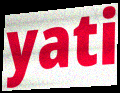
yati